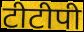
टीटीपी